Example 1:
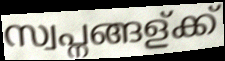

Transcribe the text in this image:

സ്വപ്നങ്ങള്ക്ക്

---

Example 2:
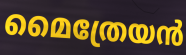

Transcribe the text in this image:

മൈത്രേയൻ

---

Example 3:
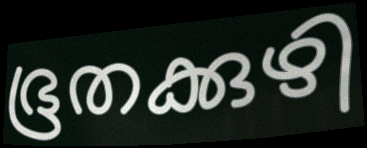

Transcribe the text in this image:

ഭൂതക്കുഴി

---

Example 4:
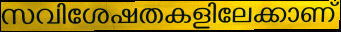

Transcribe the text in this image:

സവിശേഷതകളിലേക്കാണ്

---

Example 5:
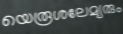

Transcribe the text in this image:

യെരൂശലേമ്യരും